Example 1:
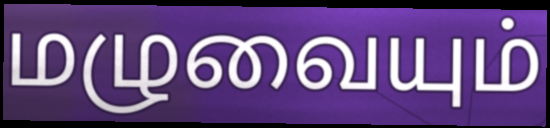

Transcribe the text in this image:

மழுவையும்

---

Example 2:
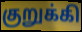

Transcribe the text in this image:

குறுக்கி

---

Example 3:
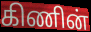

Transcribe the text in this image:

கிணின்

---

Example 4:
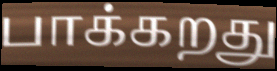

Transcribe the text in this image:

பாக்கறது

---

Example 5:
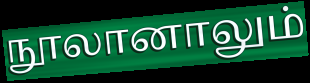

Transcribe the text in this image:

நூலானாலும்